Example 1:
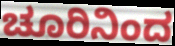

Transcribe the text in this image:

ಚೂರಿನಿಂದ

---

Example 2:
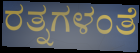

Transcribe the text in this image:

ರತ್ನಗಳಂತೆ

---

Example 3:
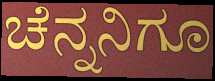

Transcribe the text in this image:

ಚೆನ್ನನಿಗೂ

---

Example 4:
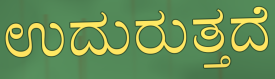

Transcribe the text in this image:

ಉದುರುತ್ತದೆ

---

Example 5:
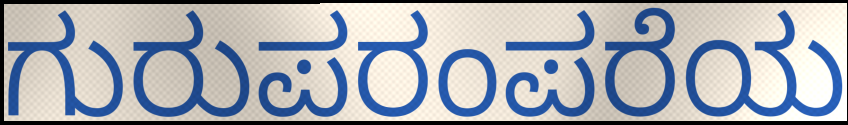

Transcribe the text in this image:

ಗುರುಪರಂಪರೆಯ